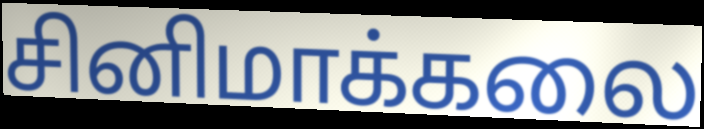
சினிமாக்கலை